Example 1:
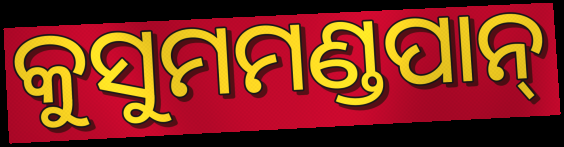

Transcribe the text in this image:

କୁସୁମମଣ୍ଡପାନ୍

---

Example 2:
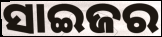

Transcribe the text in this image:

ସାଇଜର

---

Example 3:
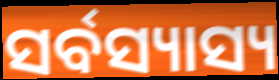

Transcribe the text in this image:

ସର୍ବସ୍ୟାସ୍ୟ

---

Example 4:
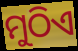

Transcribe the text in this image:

ମୁଠିଏ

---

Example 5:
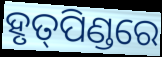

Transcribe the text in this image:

ହୃତ୍‌ପିଣ୍ଡରେ